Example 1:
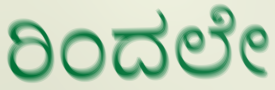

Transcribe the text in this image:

ರಿಂದಲೇ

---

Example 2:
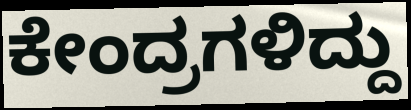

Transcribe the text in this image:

ಕೇಂದ್ರಗಳಿದ್ದು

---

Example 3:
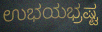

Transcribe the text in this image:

ಉಭಯಭ್ರಷ್ಟ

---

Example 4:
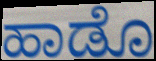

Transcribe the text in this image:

ಹಾಡೊ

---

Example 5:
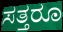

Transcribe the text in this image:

ಸತ್ತರೂ